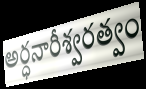
అర్ధనారీశ్వరత్వం